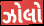
ઝોલો